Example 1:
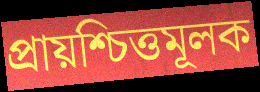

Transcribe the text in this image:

প্রায়শ্চিত্তমূলক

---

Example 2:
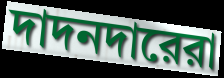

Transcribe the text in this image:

দাদনদারেরা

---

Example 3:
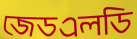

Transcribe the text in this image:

জেডএলডি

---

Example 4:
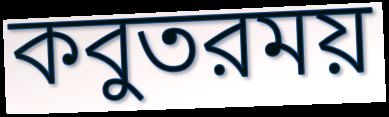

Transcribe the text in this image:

কবুতরময়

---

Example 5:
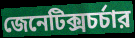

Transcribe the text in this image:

জেনেটিক্সচর্চার